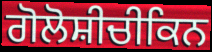
ਗੋਲੋਸ਼ੀਚੀਕਿਨ